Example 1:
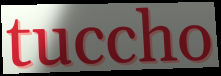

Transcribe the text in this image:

tuccho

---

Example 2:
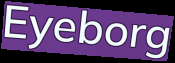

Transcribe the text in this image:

Eyeborg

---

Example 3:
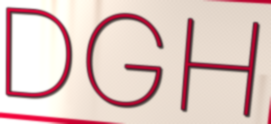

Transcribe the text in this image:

DGH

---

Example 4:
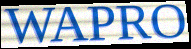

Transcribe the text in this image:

WAPRO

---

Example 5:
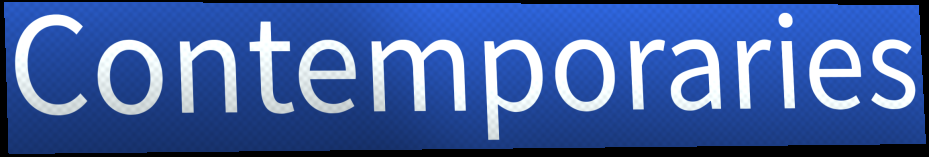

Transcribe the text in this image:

Contemporaries